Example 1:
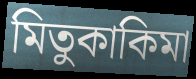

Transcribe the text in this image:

মিতুকাকিমা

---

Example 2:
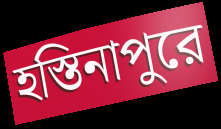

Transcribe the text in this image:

হস্তিনাপুরে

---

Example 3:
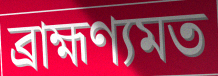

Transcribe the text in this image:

ব্রাহ্মণ্যমত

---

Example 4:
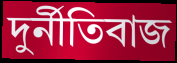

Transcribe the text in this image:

দুর্নীতিবাজ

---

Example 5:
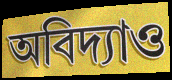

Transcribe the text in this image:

অবিদ্যাও